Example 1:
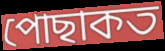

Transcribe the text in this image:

পোছাকত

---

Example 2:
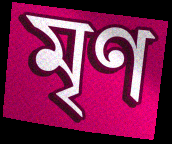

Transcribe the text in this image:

মৃণ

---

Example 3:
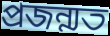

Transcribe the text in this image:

প্ৰজন্মত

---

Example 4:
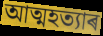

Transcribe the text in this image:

আত্মহত্যাৰ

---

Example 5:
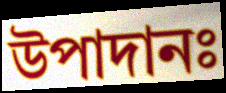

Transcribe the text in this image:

উপাদানঃ